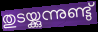
തുടയ്ക്കുന്നുണ്ടു്